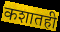
कशातही